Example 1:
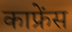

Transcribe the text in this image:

काफ्रेंस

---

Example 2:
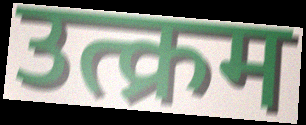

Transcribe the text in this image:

उत्क्रम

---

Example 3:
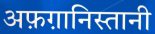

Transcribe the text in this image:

अफ़ग़ानिस्तानी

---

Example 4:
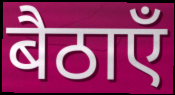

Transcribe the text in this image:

बैठाएँ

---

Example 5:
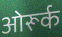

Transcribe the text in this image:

ओरूर्क